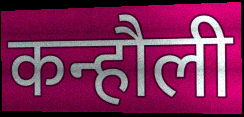
कन्हौली